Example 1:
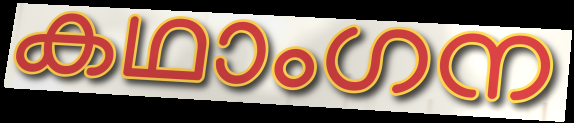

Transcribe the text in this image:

കഥാംഗന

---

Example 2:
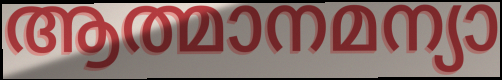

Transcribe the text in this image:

ആത്മാനമന്യാ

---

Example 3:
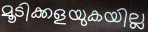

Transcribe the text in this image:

മൂടിക്കളയുകയില്ല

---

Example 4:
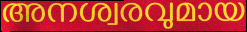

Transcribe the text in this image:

അനശ്വരവുമായ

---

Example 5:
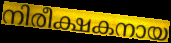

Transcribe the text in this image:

നിരീക്ഷകനായ